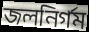
জলনির্গম